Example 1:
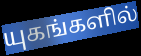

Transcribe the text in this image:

யுகங்களில்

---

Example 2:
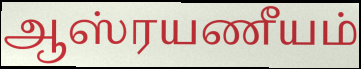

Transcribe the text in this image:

ஆஸ்ரயணீயம்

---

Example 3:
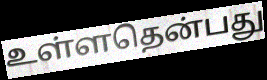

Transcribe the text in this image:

உள்ளதென்பது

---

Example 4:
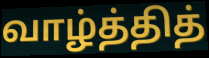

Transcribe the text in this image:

வாழ்த்தித்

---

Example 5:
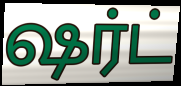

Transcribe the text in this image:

ஷர்ட்